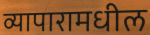
व्यापारामधील